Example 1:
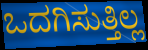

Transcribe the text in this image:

ಒದಗಿಸುತ್ತಿಲ್ಲ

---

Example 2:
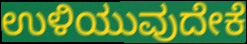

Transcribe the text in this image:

ಉಳಿಯುವುದೇಕೆ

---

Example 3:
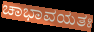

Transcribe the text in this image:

ಚಾಭಾವಯತಃ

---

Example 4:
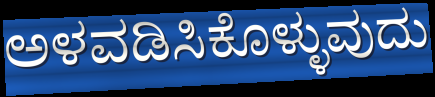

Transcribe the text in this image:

ಅಳವಡಿಸಿಕೊಳ್ಳುವುದು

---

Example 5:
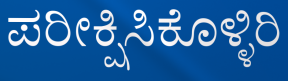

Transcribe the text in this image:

ಪರೀಕ್ಷಿಸಿಕೊಳ್ಳಿರಿ